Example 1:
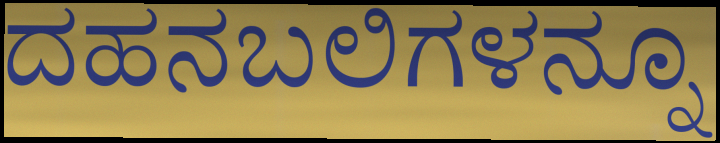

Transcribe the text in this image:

ದಹನಬಲಿಗಳನ್ನೂ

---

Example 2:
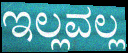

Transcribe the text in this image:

ಇಲ್ಲವಲ್ಲ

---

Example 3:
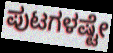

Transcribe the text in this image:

ಪುಟಗಳಷ್ಟೇ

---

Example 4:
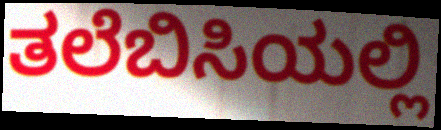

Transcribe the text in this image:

ತಲೆಬಿಸಿಯಲ್ಲಿ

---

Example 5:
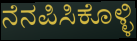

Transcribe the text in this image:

ನೆನಪಿಸಿಕೊಳ್ಳಿ